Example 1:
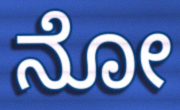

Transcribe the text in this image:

ನೋ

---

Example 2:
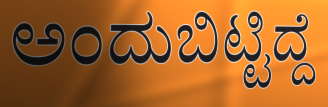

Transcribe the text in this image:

ಅಂದುಬಿಟ್ಟಿದ್ದೆ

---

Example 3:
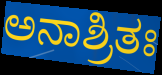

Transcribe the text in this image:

ಅನಾಶ್ರಿತಃ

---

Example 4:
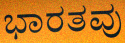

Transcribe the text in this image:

ಭಾರತವು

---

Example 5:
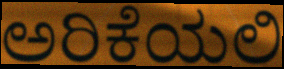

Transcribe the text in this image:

ಅರಿಕೆಯಲಿ